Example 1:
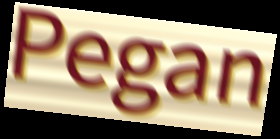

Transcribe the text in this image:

Pegan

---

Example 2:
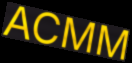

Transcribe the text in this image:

ACMM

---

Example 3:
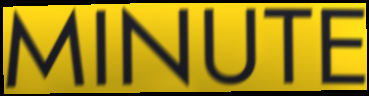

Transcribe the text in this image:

MINUTE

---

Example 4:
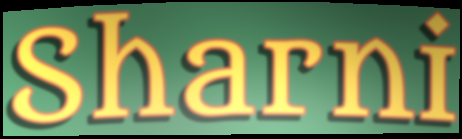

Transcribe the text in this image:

Sharni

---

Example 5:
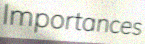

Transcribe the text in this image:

Importances